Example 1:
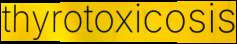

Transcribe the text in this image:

thyrotoxicosis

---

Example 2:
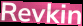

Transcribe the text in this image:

Revkin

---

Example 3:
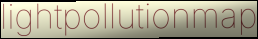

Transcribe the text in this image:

lightpollutionmap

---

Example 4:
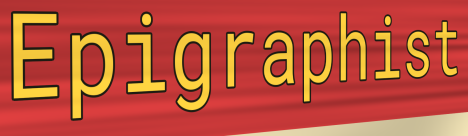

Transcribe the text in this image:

Epigraphist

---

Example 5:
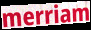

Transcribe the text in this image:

merriam